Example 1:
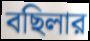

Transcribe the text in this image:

বছিলার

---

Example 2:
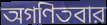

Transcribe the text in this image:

অগণিতবার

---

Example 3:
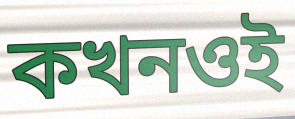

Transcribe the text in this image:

কখনওই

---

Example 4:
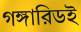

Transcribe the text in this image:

গঙ্গারিডই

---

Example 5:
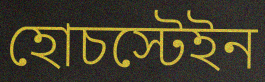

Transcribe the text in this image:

হোচস্টেইন